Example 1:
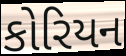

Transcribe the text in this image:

કોરિયન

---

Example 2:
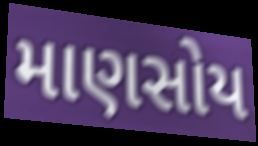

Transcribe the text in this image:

માણસોય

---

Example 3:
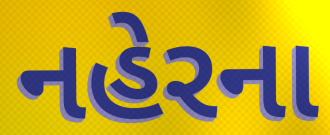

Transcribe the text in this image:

નહેરના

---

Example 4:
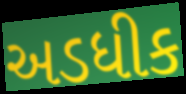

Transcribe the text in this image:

અડધીક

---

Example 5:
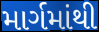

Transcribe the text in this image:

માર્ગમાંથી